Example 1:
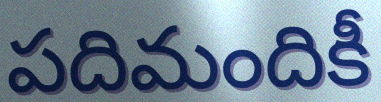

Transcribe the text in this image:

పదిమందికీ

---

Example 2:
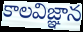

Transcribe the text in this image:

కాలవిజ్ఞాన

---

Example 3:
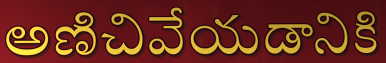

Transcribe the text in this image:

అణిచివేయడానికి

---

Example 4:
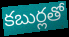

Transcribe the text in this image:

కబుర్లతో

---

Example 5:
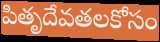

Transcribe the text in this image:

పితృదేవతలకోసం